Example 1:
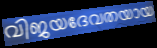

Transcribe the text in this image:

വിജയദേവതയായ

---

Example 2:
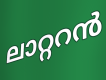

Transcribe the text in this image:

ലാറ്ററൻ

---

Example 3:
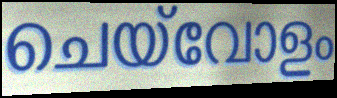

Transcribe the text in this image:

ചെയ്‌വോളം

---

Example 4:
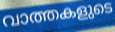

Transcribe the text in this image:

വാത്തകളുടെ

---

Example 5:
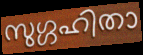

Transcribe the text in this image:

സുഗ്ഗഹിതാ